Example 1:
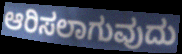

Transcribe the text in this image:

ಆರಿಸಲಾಗುವುದು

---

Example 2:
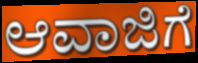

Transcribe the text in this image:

ಆವಾಜಿಗೆ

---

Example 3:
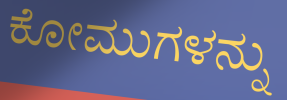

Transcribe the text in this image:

ಕೋಮುಗಳನ್ನು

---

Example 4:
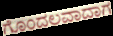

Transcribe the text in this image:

ಗೊಂದಲವಾದಾಗ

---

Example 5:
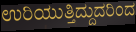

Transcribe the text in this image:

ಉರಿಯುತ್ತಿದ್ದುದರಿಂದ